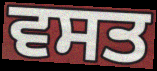
ਵਸਤ